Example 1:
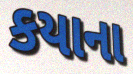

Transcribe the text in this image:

કયાના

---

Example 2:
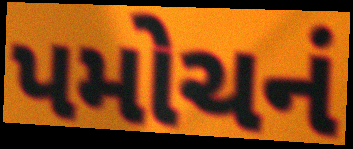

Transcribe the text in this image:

પમોચનં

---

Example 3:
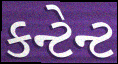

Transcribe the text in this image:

કન્ટેન્ટ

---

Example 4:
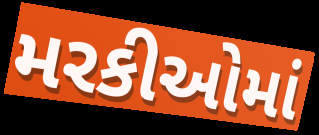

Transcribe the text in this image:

મરકીઓમાં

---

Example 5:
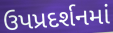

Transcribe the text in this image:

ઉપપ્રદર્શનમાં